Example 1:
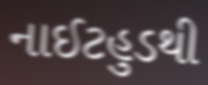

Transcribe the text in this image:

નાઈટહુડથી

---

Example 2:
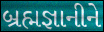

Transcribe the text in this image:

બ્રહ્મજ્ઞાનીને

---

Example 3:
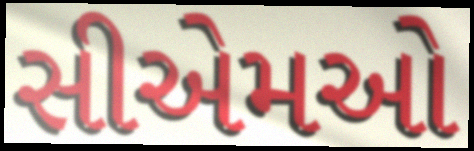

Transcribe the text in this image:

સીએમઓ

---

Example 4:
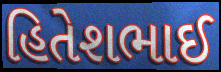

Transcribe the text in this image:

હિતેશભાઈ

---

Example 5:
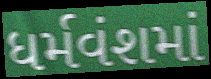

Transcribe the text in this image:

ધર્મવંશમાં